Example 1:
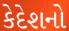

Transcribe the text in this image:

કેદેશનો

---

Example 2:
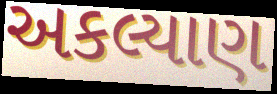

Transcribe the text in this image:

અકલ્યાણ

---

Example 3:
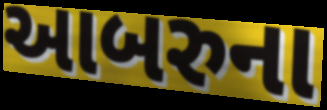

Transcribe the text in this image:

આબરુના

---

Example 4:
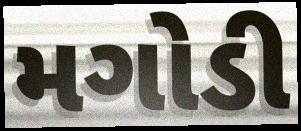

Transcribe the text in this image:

મગોડી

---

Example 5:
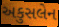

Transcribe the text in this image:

અકુસલેન